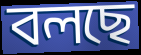
বলছে